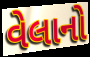
વેલાનો